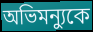
অভিমন্যুকে